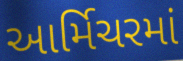
આર્મિચરમાં